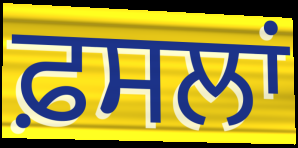
ਫ਼ਸਲਾਂ